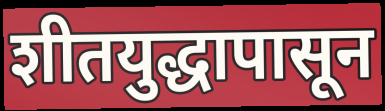
शीतयुद्धापासून